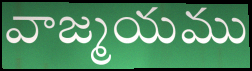
వాజ్మయము